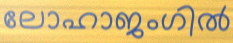
ലോഹാജംഗിൽ